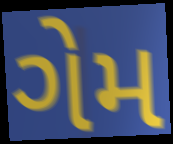
ગેમ